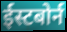
ईस्टबोर्न